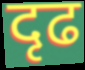
दृढ